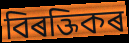
বিৰক্তিকৰ